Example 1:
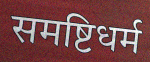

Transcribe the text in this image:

समष्टिधर्म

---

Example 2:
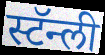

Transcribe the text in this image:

स्टॅन्ली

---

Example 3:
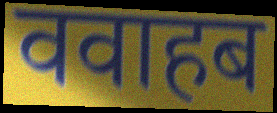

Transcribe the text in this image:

ववाहब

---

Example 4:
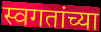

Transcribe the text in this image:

स्वगतांच्या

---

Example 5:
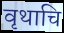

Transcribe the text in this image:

वृथाचि